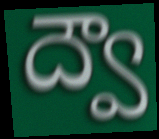
ద్వౌ